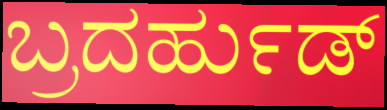
ಬ್ರದರ್ಹುಡ್